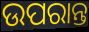
ଉପରାନ୍ତ